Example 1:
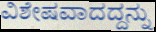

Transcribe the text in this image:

ವಿಶೇಷವಾದದ್ದನ್ನು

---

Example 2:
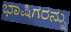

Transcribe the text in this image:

ಭಾಷಿಗರನ್ನು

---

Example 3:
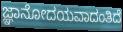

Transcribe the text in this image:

ಜ್ಞಾನೋದಯವಾದಂತಿದೆ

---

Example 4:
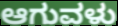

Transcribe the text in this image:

ಆಗುವಳು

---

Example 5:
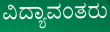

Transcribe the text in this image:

ವಿದ್ಯಾವಂತರು